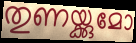
തുണയ്ക്കുമോ